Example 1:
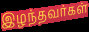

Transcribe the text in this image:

இழந்தவர்கள்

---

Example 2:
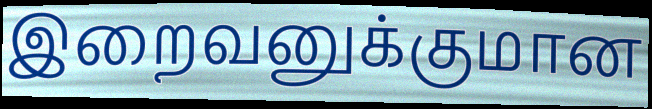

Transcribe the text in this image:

இறைவனுக்குமான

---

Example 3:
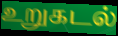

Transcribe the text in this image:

உறுகடல்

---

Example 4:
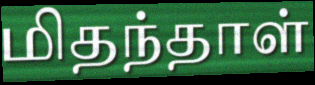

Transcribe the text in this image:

மிதந்தாள்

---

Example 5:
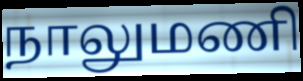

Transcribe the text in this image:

நாலுமணி